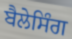
ਬੈਲੇਸਿੰਗ